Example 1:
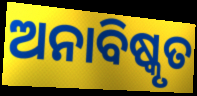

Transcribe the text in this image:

ଅନାବିଷ୍କୃତ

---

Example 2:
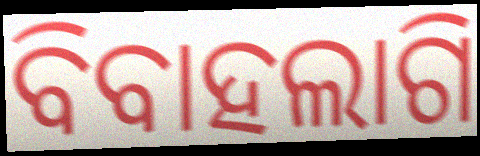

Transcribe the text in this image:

ବିବାହଲାଗି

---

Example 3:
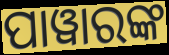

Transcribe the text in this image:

ପାୱାରଙ୍କ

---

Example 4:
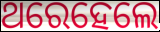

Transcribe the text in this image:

ଥରେହେଲେ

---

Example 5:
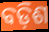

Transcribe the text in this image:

ବଡ଼ିଶ